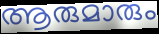
ആരുമാരും